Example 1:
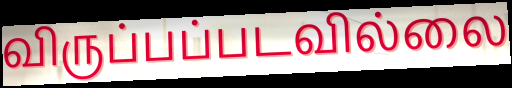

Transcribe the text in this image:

விருப்பப்படவில்லை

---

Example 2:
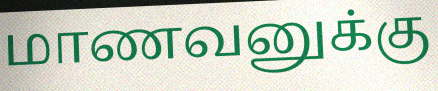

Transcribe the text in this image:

மாணவனுக்கு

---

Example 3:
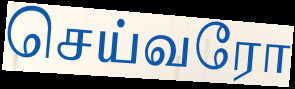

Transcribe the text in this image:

செய்வரோ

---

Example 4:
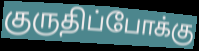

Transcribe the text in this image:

குருதிப்போக்கு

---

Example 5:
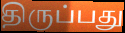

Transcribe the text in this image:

திருப்பது